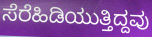
ಸೆರೆಹಿಡಿಯುತ್ತಿದ್ದವು